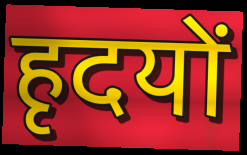
हृदयों